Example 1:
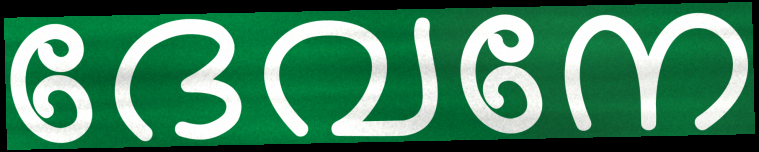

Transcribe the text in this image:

ദേവനേ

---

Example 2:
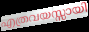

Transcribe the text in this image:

എത്രവയസ്സായി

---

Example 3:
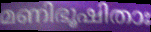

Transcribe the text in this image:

മണിഭൂഷിതാഃ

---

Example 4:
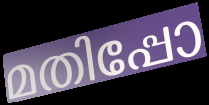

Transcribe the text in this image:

മതിപ്പോ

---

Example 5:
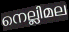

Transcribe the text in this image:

നെല്ലിമല